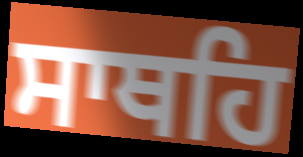
ਸਾਥਹਿ